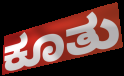
ಕೂತು